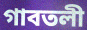
গাবতলী